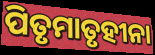
ପିତୃମାତୃହୀନା